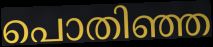
പൊതിഞ്ഞ